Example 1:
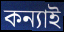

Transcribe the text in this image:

কন্যাই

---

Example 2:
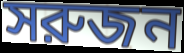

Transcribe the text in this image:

সৰুজন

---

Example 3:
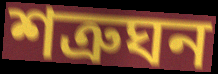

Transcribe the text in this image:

শত্ৰুঘন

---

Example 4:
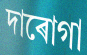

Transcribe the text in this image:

দাৰোগা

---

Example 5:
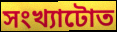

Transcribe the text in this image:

সংখ্যাটোত